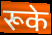
रूके